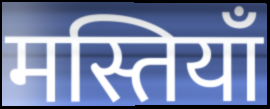
मस्तियाँ